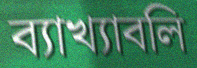
ব্যাখ্যাবলি